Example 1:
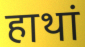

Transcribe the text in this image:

हाथां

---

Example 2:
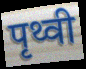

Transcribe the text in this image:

पृथ्‍वी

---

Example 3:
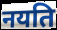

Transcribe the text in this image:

नयति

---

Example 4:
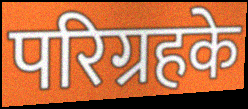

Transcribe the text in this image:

परिग्रहके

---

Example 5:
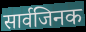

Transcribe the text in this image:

सार्वजिनक